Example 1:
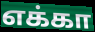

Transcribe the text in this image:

எக்கா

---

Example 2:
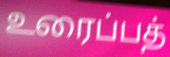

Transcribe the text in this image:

உரைப்பத்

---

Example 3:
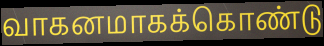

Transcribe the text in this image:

வாகனமாகக்கொண்டு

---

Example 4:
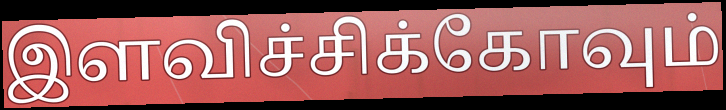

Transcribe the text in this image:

இளவிச்சிக்கோவும்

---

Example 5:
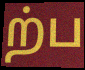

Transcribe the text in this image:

ற்ப